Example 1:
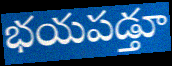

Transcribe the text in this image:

భయపడ్తూ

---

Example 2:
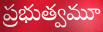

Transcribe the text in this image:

ప్రభుత్వమూ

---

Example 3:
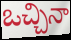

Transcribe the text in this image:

ఒచ్చినా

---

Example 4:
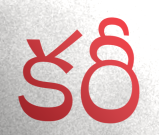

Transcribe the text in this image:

కరీ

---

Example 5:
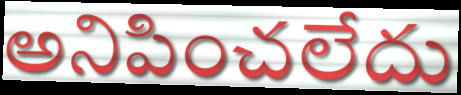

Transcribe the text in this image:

అనిపించలేదు